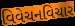
વિવેચનવિચાર